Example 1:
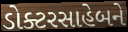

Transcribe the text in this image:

ડોક્ટરસાહેબને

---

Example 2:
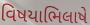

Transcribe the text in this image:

વિષયાભિલાષે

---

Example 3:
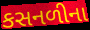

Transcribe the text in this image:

કસનળીના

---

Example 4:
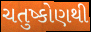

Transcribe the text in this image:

ચતુષ્કોણથી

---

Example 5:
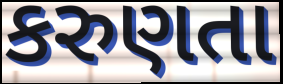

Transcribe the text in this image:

કરુણતા